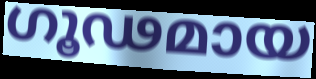
ഗൂഢമായ